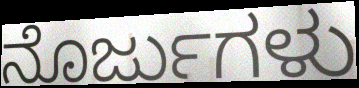
ನೊರ್ಜುಗಳು